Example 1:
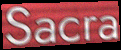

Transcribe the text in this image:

Sacra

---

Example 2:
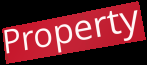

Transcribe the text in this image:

Property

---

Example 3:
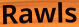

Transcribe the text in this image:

Rawls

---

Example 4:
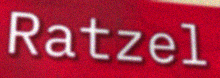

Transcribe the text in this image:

Ratzel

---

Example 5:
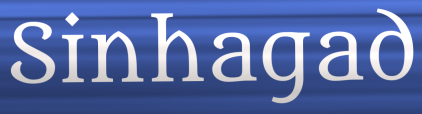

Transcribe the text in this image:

Sinhagad